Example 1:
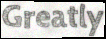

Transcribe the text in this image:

Greatly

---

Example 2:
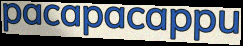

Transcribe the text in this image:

pacapacappu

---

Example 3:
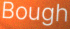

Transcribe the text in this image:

Bough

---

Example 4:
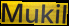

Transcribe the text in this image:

Mukil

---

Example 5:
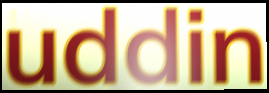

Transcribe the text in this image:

uddin